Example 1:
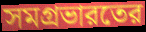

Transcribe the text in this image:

সমগ্রভারতের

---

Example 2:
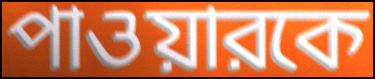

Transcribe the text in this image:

পাওয়ারকে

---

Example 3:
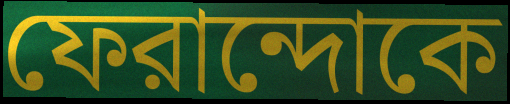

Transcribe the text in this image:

ফেরান্দোকে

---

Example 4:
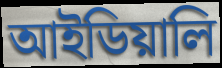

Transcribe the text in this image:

আইডিয়ালি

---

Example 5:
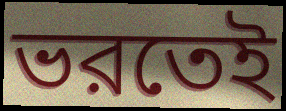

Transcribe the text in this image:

ভরতেই